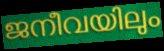
ജനീവയിലും